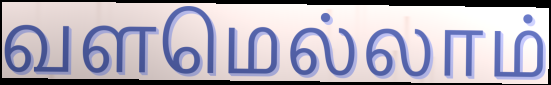
வளமெல்லாம்